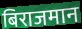
बिराजमान